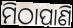
ମିଠାପାଣି